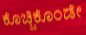
ಕೊಚ್ಚಿಕೊಂಡೇ